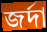
জর্দা